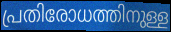
പ്രതിരോധത്തിനുള്ള